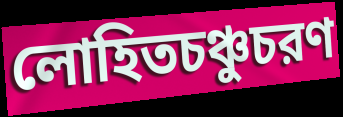
লোহিতচঞ্চুচরণ